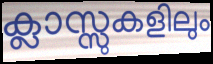
ക്ലാസ്സുകളിലും